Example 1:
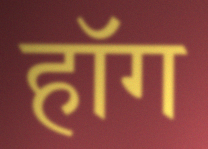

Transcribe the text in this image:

हॉग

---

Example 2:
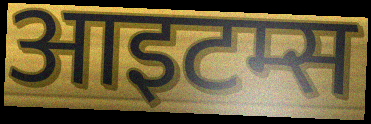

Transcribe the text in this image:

आइटम्स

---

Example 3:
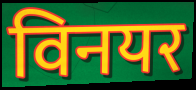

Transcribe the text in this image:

विनयर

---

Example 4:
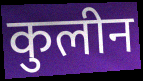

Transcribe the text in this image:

कुलीन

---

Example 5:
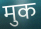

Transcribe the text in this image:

मुक